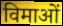
विमाओं